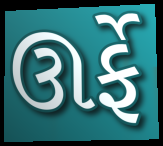
ઊર્ફે